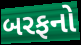
બરફનો